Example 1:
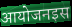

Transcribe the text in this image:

आयोजनइस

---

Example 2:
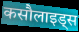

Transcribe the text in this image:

कसौलाइड्स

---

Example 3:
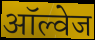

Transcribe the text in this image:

ऑल्वेज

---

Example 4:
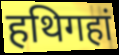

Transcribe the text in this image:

हथिगहां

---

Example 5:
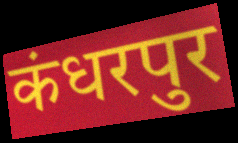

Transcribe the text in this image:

कंधरपुर